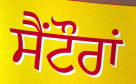
ਸੈਂਟੌਰਾਂ